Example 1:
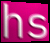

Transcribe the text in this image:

hs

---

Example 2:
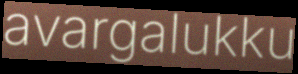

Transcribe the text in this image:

avargalukku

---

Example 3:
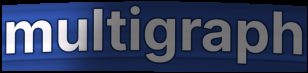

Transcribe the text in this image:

multigraph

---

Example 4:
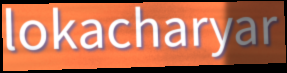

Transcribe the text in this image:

lokacharyar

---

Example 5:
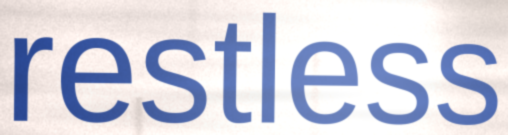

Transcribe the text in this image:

restless